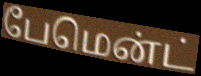
பேமென்ட்